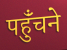
पहुंँचने